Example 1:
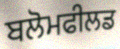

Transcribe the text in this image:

ਬਲੋਮਫੀਲਡ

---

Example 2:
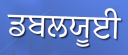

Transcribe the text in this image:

ਡਬਲਯੂਈ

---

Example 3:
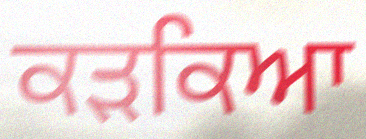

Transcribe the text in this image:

ਕੜਕਿਆ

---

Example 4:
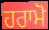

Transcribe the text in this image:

ਹਰਾਮੋ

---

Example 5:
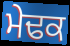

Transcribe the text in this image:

ਮੇਢਕ